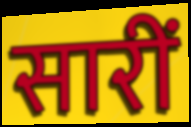
सारीं